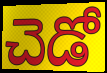
చెడో